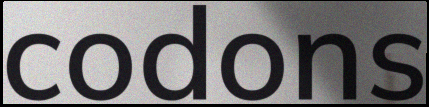
codons